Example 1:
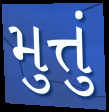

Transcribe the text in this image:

મુત્તું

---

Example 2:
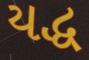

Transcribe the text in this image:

યદ્ધ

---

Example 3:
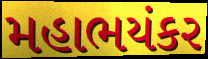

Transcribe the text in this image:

મહાભયંકર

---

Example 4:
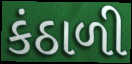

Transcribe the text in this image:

કંઠાળી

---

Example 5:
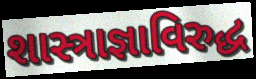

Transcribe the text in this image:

શાસ્ત્રાજ્ઞાવિરુદ્ધ